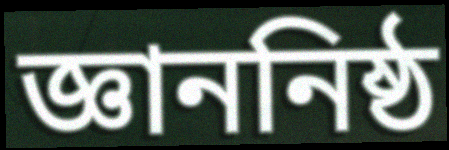
জ্ঞাননিষ্ঠ